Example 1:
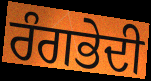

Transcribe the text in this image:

ਰੰਗਭੇਦੀ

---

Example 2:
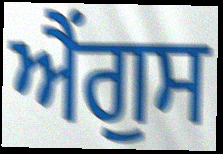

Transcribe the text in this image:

ਐਂਗੁਸ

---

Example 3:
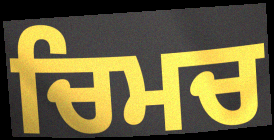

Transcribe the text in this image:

ਚਿਮਚ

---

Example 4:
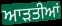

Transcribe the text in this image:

ਆੜਤੀਆਂ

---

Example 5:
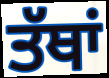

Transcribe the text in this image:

ਤੱਥਾਂ